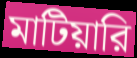
মাটিয়ারি